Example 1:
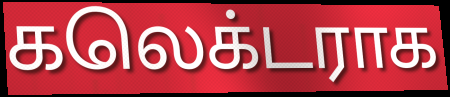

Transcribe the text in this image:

கலெக்டராக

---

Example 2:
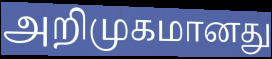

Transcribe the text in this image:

அறிமுகமானது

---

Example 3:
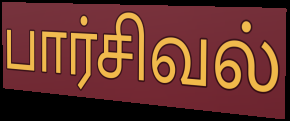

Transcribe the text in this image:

பார்சிவல்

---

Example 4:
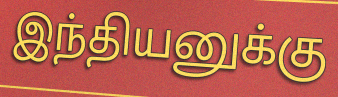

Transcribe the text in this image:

இந்தியனுக்கு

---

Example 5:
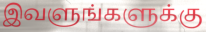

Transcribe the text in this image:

இவளுங்களுக்கு